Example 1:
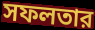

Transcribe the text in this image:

সফলতার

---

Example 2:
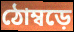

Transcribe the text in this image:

ঠোম্বড়ে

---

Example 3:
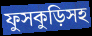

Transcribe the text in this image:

ফুসকুড়িসহ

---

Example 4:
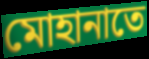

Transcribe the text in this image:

মোহানাতে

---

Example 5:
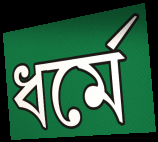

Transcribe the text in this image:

ধর্মে